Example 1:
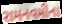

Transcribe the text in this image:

રામનવમીના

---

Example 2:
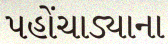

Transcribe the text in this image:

પહોંચાડ્યાના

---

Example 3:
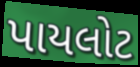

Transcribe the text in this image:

પાયલોટ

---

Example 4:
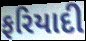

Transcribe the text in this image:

ફરિયાદી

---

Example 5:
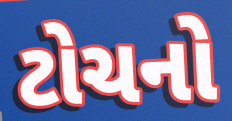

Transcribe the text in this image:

ટોચનો